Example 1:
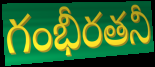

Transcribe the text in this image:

గంభీరతనీ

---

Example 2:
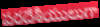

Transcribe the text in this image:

పరదేశీయులుగా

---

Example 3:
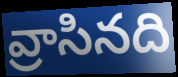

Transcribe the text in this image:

వ్రాసినది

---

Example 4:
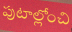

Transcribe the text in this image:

పుటాల్లోంచి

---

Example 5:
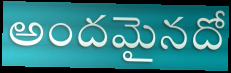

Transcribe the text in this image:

అందమైనదో